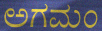
ಅಗಮಂ